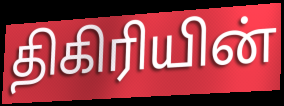
திகிரியின்